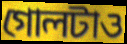
গোলটাও